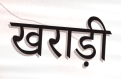
खराड़ी